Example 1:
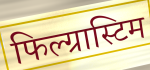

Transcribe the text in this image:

फिल्ग्रास्टिम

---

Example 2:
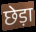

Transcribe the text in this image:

छेड़ा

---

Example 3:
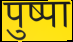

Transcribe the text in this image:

पुष्पा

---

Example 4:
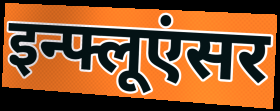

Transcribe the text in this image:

इन्फ्लूएंसर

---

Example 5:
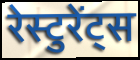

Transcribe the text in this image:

रेस्टुरेंट्स